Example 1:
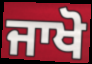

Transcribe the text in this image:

ਜਾਖੋ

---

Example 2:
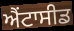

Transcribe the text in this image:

ਐਂਟਾਸੀਡ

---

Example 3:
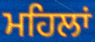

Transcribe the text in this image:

ਮਹਿਲਾਂ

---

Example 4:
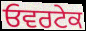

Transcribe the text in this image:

ਓਵਰਟੇਕ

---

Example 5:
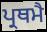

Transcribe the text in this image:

ਪ੍ਰਥਮੈ